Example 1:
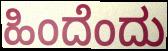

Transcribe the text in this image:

ಹಿಂದೆಂದು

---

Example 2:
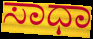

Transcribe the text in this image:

ಸಾಧಾ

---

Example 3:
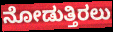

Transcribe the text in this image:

ನೋಡುತ್ತಿರಲು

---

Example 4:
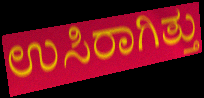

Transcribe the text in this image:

ಉಸಿರಾಗಿತ್ತು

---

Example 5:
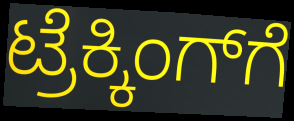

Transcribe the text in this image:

ಟ್ರೆಕ್ಕಿಂಗ್‌ಗೆ